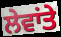
ਲੇਵਾਂਤੇ